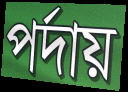
পর্দায়